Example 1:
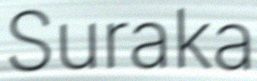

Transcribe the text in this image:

Suraka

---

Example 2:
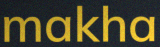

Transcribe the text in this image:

makha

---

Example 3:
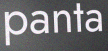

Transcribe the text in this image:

panta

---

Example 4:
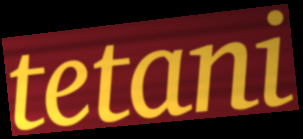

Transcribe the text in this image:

tetani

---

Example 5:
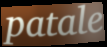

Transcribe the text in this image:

patale